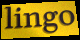
lingo